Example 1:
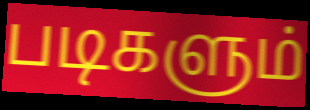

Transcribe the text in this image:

படிகளும்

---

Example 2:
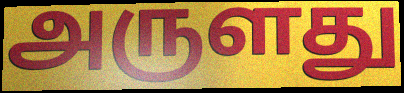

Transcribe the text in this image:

அருளது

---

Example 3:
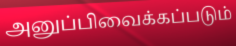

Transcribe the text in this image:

அனுப்பிவைக்கப்படும்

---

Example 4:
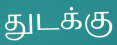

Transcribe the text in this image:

துடக்கு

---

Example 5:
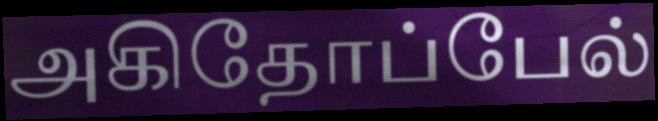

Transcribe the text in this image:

அகிதோப்பேல்